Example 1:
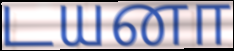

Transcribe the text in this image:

டயனா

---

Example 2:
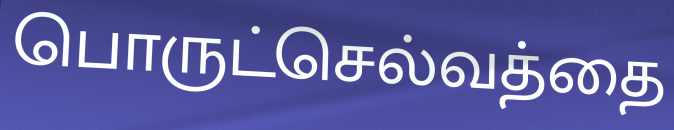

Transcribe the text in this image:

பொருட்செல்வத்தை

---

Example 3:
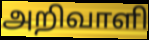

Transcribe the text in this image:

அறிவாளி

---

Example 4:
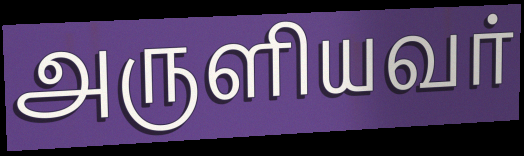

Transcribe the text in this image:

அருளியவர்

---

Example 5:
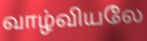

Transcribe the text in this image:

வாழ்வியலே